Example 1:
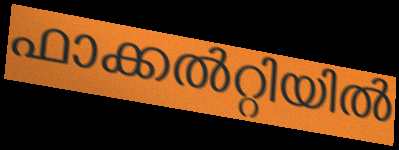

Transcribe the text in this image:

ഫാക്കൽറ്റിയിൽ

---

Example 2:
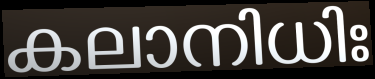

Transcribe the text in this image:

കലാനിധിഃ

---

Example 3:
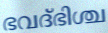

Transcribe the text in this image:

ഭവദ്ഭിശ്ച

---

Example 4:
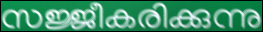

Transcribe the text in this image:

സജ്ജീകരിക്കുന്നു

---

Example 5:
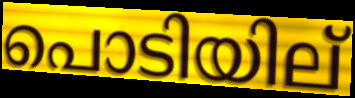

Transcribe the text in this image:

പൊടിയില്